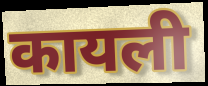
कायली